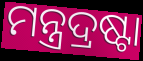
ମନ୍ତ୍ରଦ୍ରଷ୍ଟା